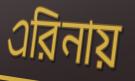
এরিনায়